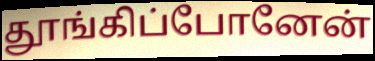
தூங்கிப்போனேன்